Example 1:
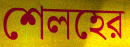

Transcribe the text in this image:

শেলহের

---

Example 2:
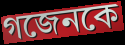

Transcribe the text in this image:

গজেনকে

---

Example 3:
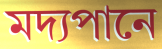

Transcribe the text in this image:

মদ্যপানে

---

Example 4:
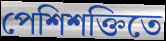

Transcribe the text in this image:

পেশিশক্তিতে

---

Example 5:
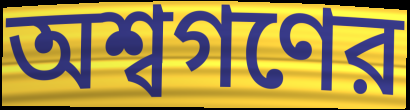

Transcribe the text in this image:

অশ্বগণের